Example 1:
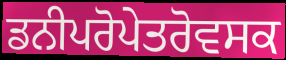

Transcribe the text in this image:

ਡਨੀਪਰੋਪੇਤਰੋਵਸਕ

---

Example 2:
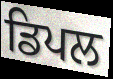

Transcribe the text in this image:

ਡਿਪਲ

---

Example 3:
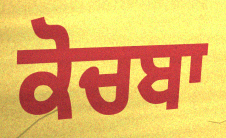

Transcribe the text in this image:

ਕੋਚਬਾ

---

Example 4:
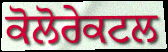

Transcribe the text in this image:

ਕੋਲੋਰੇਕਟਲ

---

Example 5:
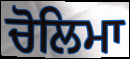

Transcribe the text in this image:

ਚੋਲਿਮਾ